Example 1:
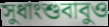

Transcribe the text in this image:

সুধাংশুবাবুও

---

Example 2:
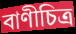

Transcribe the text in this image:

বাণীচিত্র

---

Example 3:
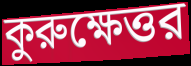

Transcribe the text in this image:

কুরুক্ষেত্তর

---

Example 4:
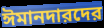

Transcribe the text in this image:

ঈমানদারদের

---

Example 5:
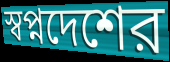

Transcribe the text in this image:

স্বপ্নদেশের